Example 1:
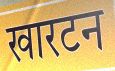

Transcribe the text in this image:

खारटन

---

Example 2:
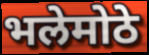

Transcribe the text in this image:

भलेमोठे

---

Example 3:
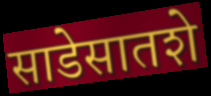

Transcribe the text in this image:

साडेसातशे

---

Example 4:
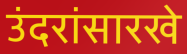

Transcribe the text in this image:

उंदरांसारखे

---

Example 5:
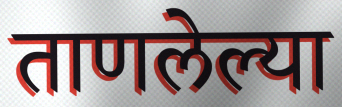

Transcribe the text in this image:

ताणलेल्या